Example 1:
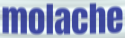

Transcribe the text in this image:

molache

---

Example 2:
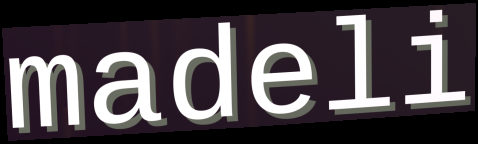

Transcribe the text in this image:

madeli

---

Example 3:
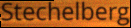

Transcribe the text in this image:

Stechelberg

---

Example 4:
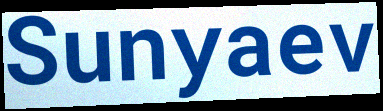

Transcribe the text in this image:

Sunyaev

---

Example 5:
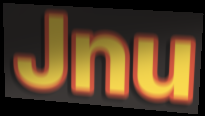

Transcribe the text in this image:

Jnu